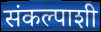
संकल्पाशी